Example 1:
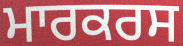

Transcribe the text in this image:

ਮਾਰਕਰਸ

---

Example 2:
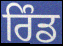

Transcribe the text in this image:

ਰਿੰਡ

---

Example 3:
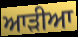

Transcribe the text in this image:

ਆੜੀਆ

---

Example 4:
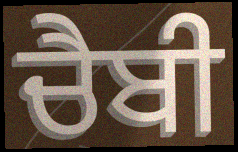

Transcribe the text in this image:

ਚੈਬੀ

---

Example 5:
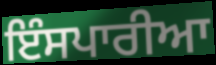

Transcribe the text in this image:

ਇੰਸਪਾਰੀਆ